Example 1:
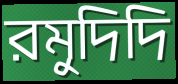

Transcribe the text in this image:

রমুদিদি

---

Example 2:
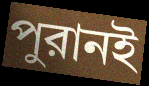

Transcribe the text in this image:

পুরানই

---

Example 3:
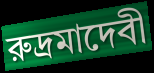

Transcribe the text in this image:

রুদ্রমাদেবী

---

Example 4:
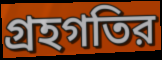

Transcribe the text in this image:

গ্রহগতির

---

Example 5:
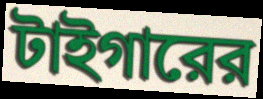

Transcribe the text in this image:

টাইগারের